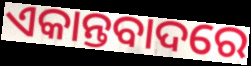
ଏକାନ୍ତବାଦରେ